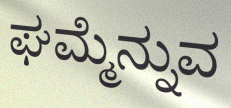
ಘಮ್ಮೆನ್ನುವ